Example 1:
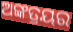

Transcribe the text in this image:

ଅଙ୍କତ୍ରୟର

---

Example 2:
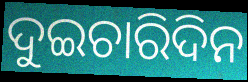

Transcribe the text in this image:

ଦୁଇଚାରିଦିନ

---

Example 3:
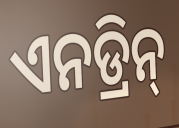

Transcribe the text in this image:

ଏନଡ୍ରିନ୍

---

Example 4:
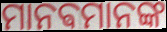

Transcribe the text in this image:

ମାନଵମାନଙ୍କ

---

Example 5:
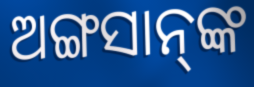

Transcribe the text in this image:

ଅଙ୍ଗସାନ୍‌ଙ୍କ